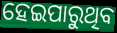
ହେଇପାରୁଥିବ